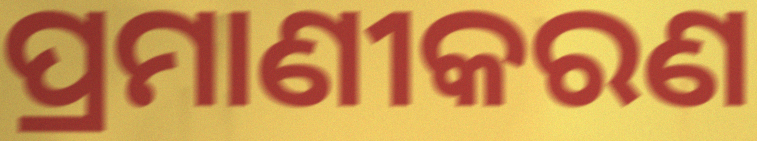
ପ୍ରମାଣୀକରଣ